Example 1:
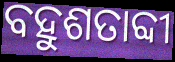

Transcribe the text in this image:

ବହୁଶତାବ୍ଦୀ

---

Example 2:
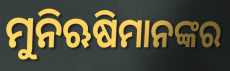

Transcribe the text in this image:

ମୁନିଋଷିମାନଙ୍କର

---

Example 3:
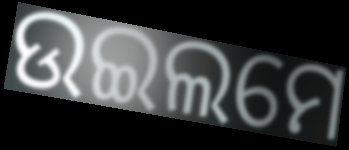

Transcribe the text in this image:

ଉଇଲମେ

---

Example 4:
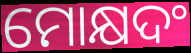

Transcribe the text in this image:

ମୋକ୍ଷଦଂ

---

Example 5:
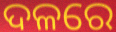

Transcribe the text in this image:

ଦଳରେ